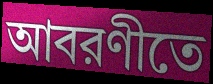
আবরণীতে